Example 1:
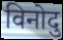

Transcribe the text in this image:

विनोदु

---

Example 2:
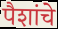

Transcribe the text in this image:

पैशांचे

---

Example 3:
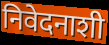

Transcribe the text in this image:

निवेदनाशी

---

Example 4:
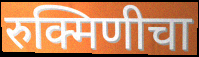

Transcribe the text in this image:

रुक्मिणीचा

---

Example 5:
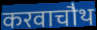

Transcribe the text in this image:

करवाचौथ